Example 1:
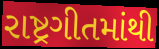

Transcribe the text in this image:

રાષ્ટ્રગીતમાંથી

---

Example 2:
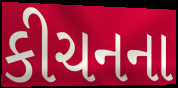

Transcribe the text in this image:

કીચનના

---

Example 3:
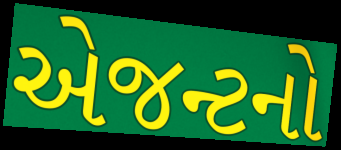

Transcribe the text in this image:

એજન્ટનો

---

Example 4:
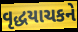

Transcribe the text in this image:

વૃદ્ધયાચકને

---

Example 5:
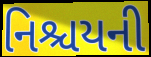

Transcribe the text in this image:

નિશ્ચયની